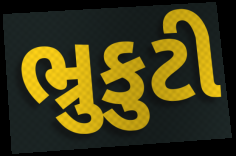
ભ્રુકુટી